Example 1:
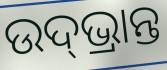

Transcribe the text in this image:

ଉଦ୍‌ଭ୍ରାନ୍ତ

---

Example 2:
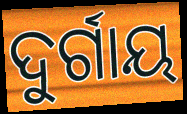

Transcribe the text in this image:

ଦୁର୍ଗାୟ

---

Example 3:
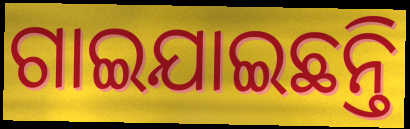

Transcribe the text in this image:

ଗାଇଯାଇଛନ୍ତି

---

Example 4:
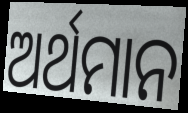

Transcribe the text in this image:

ଅର୍ଥମାନ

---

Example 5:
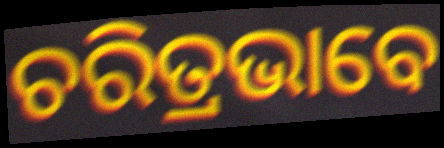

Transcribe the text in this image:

ଚରିତ୍ରଭାବେ